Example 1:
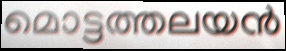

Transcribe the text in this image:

മൊട്ടത്തലയൻ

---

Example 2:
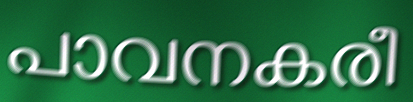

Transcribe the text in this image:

പാവനകരീ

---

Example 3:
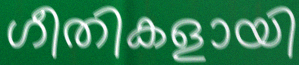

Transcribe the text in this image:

ഗീതികളായി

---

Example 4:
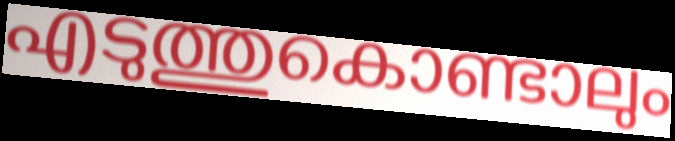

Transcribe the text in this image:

എടുത്തുകൊണ്ടാലും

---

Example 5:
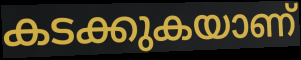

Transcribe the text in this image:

കടക്കുകയാണ്